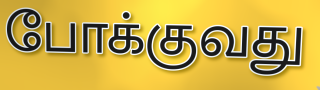
போக்குவது